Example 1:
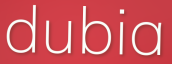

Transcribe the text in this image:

dubia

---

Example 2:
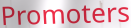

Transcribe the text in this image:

Promoters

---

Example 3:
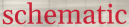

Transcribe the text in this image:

schematic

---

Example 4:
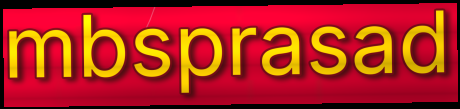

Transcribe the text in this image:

mbsprasad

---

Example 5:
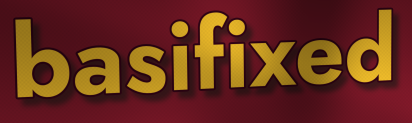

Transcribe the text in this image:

basifixed